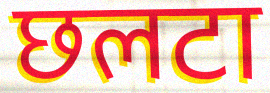
छलटा